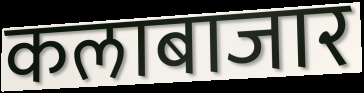
कलाबाजार